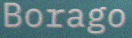
Borago